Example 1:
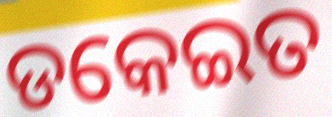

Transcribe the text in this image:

ଡକେଇତ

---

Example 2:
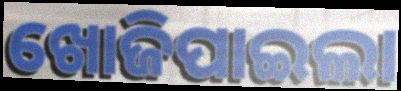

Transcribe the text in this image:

ଖୋଜିପାଇଲା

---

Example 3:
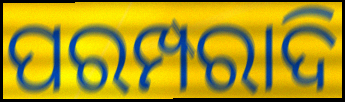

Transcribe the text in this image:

ପରମ୍ପରାଦି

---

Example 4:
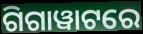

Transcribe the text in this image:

ଗିଗାୱାଟରେ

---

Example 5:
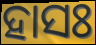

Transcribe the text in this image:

ହାସଃ